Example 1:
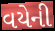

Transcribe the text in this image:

વયેની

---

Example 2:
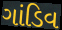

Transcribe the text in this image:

ગાંડિવ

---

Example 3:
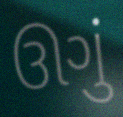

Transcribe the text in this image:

ઊગું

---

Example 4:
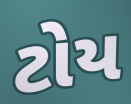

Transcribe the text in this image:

ટોય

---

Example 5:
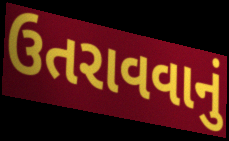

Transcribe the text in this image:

ઉતરાવવાનું